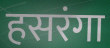
हसरंगा